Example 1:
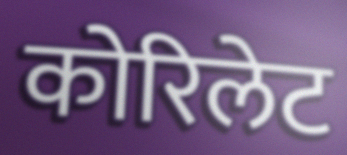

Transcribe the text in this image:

कोरिलेट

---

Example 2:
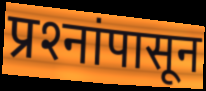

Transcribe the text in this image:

प्रश्नांपासून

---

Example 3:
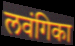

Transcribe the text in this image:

लवंगिका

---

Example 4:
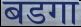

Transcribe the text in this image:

बडगा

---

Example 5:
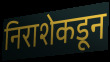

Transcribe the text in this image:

निराशेकडून